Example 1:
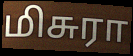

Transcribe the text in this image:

மிசுரா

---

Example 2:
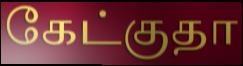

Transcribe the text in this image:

கேட்குதா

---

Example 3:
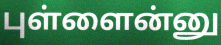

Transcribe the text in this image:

புள்ளைன்னு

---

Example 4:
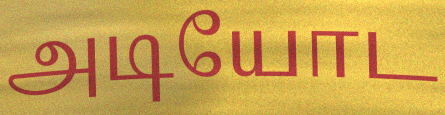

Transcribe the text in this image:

அடியோட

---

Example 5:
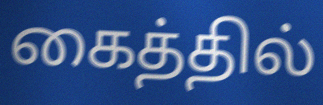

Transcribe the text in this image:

கைத்தில்